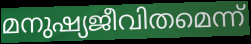
മനുഷ്യജീവിതമെന്ന്